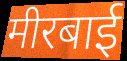
मीरबाई